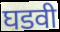
घडवी